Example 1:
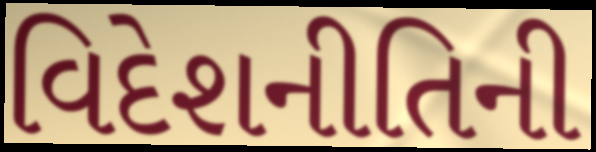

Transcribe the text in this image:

વિદેશનીતિની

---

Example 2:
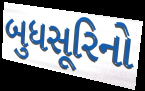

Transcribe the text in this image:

બુધસૂરિનો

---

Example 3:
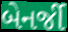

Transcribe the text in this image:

બેનર્જી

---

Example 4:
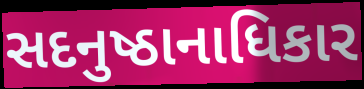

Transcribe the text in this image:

સદનુષ્ઠાનાધિકાર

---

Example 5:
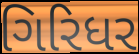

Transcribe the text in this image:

ગિરિધર